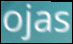
ojas